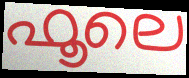
ഫൂലെ